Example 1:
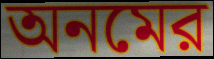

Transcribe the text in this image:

অনমের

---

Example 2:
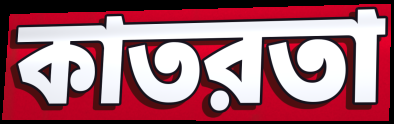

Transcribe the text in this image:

কাতরতা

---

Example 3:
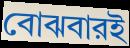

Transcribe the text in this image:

বোঝবারই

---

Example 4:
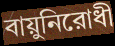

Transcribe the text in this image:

বায়ুনিরোধী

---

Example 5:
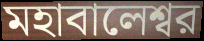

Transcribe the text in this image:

মহাবালেশ্বর